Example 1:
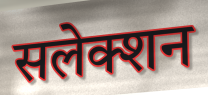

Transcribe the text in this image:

सलेक्शन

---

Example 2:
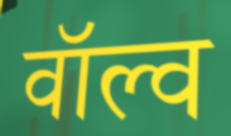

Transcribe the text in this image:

वॉल्व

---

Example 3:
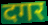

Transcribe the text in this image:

दगर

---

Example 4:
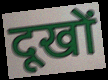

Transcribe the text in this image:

दूखों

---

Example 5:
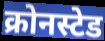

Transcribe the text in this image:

क्रोनस्टेड